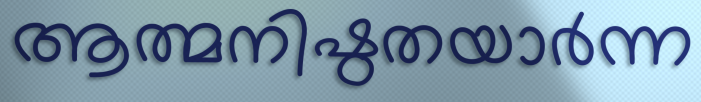
ആത്മനിഷ്ഠതയാർന്ന